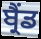
ਬ੍ਰੈਂਡ